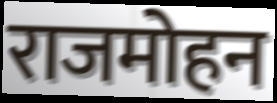
राजमोहन